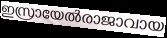
ഇസ്രായേൽരാജാവായ